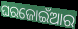
ଘରଜୋଇଁଆର